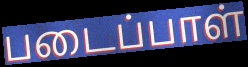
படைப்பாள்